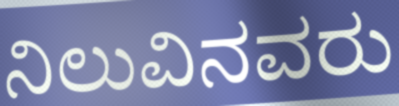
ನಿಲುವಿನವರು